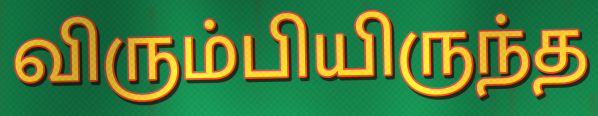
விரும்பியிருந்த